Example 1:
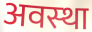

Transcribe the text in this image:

अवस्‍था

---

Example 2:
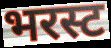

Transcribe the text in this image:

भरस्ट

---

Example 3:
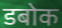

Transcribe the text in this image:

डबोक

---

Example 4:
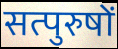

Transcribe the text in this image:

सत्पुरुषों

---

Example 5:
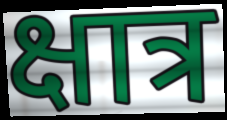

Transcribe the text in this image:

क्षात्र